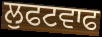
ਲੁਫਟਵਾਫ